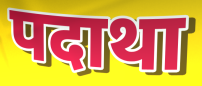
पदाथा